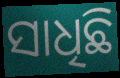
ସାଧିଛି